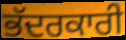
ਭੱਦਰਕਾਰੀ